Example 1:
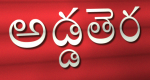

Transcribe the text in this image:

అడ్డతెర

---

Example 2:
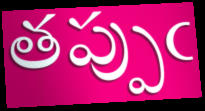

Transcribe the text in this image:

తప్పుఁ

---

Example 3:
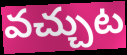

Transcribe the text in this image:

వచ్చుట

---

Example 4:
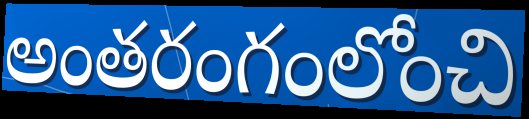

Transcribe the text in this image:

అంతరంగంలోంచి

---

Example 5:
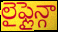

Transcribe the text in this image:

లైఫ్లైన్గా